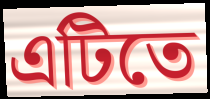
এটিতে